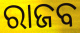
ରାଜବ